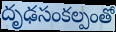
దృఢసంకల్పంతో